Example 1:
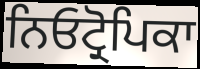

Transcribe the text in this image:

ਨਿਓਟ੍ਰੋਪਿਕਾ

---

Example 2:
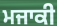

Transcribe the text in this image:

ਮਜਾਕੀ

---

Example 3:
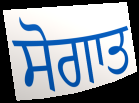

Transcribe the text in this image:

ਸੋਗਾਤ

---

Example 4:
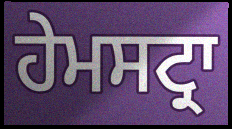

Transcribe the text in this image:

ਹੇਮਸਟ੍ਰਾ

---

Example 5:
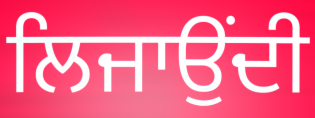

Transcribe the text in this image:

ਲਿਜਾਉਂਦੀ